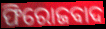
ଫିରୋଜବାଦ